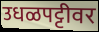
उधळपट्टीवर